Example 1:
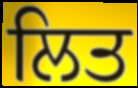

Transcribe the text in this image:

ਲਿਤ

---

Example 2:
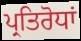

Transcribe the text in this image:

ਪ੍ਰਤਿਰੋਧਾਂ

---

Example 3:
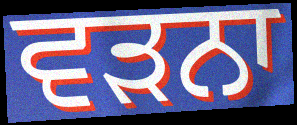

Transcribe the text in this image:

ਵੜਨਾ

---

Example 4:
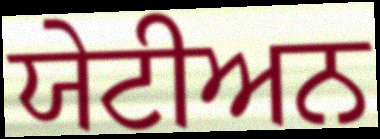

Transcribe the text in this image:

ਯੇਟੀਅਨ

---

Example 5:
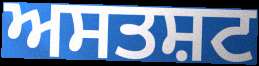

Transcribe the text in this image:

ਅਸਤਸ਼ਟ